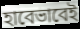
হাবেভাবেই